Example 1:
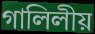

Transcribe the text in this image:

গালিলীয়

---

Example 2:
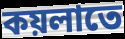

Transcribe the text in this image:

কয়লাতে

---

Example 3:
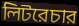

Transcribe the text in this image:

লিটরেচার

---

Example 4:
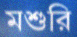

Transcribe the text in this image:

মশুরি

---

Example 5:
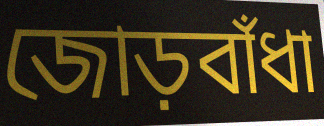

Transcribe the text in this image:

জোড়বাঁধা